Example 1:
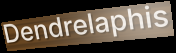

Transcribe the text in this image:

Dendrelaphis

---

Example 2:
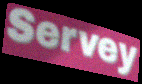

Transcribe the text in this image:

Servey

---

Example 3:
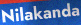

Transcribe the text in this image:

Nilakanda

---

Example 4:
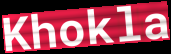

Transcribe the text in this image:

Khokla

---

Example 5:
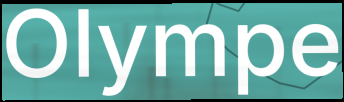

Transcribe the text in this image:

Olympe